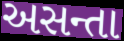
અસન્તા